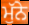
ਮੁੱਨੇ